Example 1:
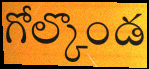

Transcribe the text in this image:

గోల్కొండ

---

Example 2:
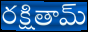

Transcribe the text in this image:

రక్షితామ్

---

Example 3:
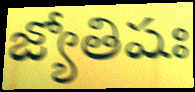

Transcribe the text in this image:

జ్యోతిషః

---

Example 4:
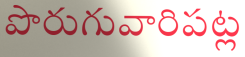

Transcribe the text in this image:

పొరుగువారిపట్ల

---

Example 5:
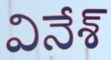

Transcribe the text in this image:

వినేశ్